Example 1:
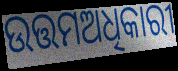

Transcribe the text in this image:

ଉତ୍ତମଅଧିକାରୀ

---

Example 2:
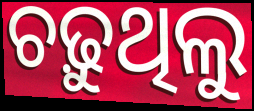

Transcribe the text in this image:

ଚଢ଼ୁଥିଲୁ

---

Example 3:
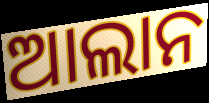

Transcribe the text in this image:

ଆଲାନ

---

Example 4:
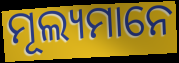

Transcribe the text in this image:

ମୂଲ୍ୟମାନେ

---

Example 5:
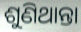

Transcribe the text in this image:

ଶୁଣିଥାନ୍ତା